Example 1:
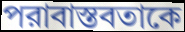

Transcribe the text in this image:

পরাবাস্তবতাকে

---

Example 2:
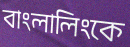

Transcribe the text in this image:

বাংলালিংকে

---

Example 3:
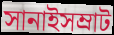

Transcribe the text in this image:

সানাইসম্রাট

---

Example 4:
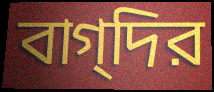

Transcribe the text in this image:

বাগ্‌দির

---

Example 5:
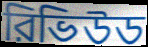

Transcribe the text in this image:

রিভিউড